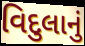
વિદુલાનું